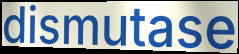
dismutase